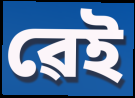
ৱেই